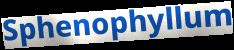
Sphenophyllum